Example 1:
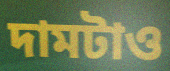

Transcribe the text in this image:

দামটাও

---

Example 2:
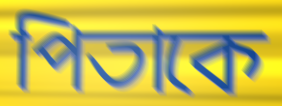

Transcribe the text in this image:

পিতাকে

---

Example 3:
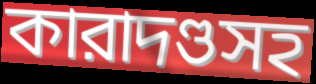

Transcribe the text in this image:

কারাদণ্ডসহ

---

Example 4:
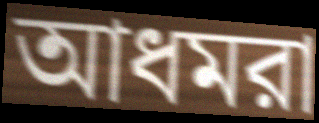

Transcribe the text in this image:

আধমরা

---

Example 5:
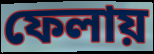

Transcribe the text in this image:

ফেলায়